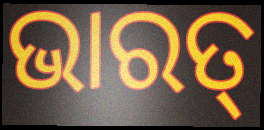
ଭାରତ୍